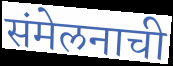
संमेलनाची